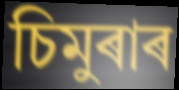
চিমুৰাৰ